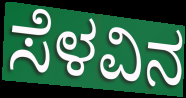
ಸೆಳವಿನ